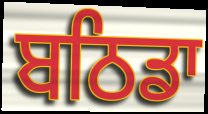
ਬਠਿਡਾ